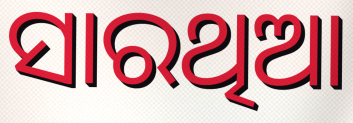
ସାରଥିଆ